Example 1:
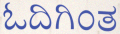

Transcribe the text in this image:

ಓದಿಗಿಂತ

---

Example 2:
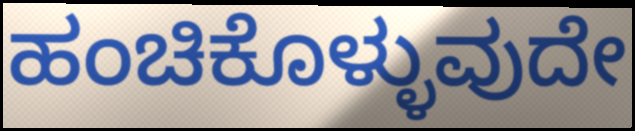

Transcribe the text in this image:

ಹಂಚಿಕೊಳ್ಳುವುದೇ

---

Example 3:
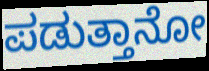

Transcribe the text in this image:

ಪಡುತ್ತಾನೋ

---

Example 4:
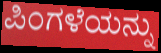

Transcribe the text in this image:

ಪಿಂಗಳೆಯನ್ನು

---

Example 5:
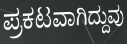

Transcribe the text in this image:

ಪ್ರಕಟವಾಗಿದ್ದುವು